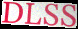
DLSS